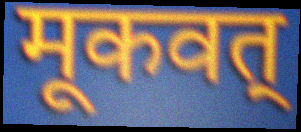
मूकवत्